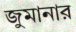
জুমানার